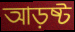
আড়ষ্ট